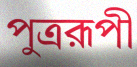
পুত্ররূপী